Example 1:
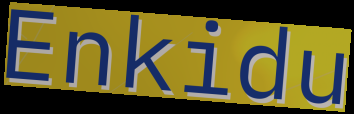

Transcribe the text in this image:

Enkidu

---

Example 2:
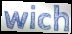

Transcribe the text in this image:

wich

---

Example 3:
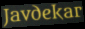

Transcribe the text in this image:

Javdekar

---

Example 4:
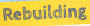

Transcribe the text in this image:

Rebuilding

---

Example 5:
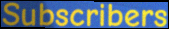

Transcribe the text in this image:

Subscribers